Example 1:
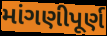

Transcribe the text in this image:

માંગણીપૂર્ણ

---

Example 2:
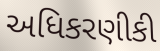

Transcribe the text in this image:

અધિકરણીકી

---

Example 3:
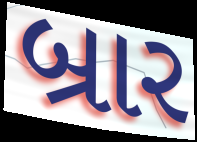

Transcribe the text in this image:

બ્રાર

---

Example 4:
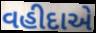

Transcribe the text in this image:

વહીદાએ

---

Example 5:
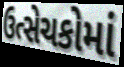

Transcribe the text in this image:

ઉત્સેચકોમાં